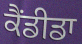
ਕੈਂਡੀਡਾ